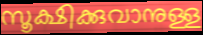
സൂക്ഷിക്കുവാനുള്ള